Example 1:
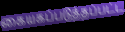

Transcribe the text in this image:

கையகப்படுத்தப்பட்ட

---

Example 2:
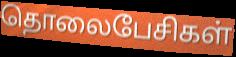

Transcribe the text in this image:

தொலைபேசிகள்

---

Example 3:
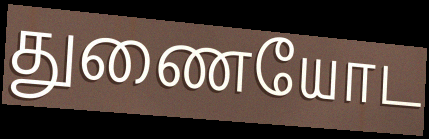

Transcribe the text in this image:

துணையோட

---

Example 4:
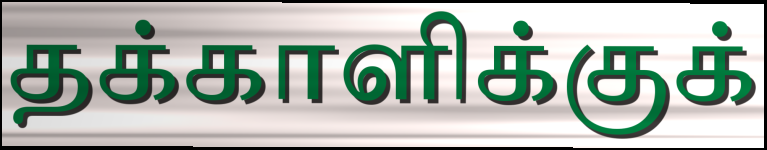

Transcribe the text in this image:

தக்காளிக்குக்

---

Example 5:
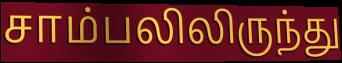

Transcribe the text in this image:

சாம்பலிலிருந்து